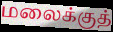
மலைக்குத்